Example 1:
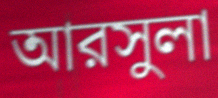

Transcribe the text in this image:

আরসুলা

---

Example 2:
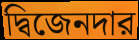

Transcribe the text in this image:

দ্বিজেনদার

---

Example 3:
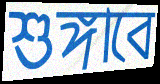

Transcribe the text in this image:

শুঙ্গাবে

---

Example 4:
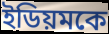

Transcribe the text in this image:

ইডিয়মকে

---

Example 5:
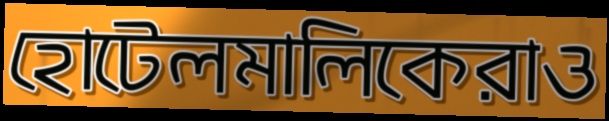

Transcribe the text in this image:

হোটেলমালিকেরাও